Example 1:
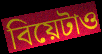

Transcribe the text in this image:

বিয়েটাও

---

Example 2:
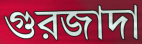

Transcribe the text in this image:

গুরজাদা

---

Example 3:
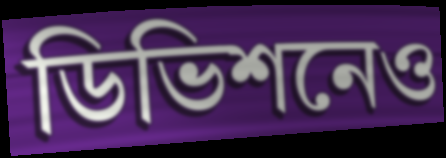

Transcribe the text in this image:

ডিভিশনেও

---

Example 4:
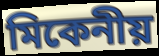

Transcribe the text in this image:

মিকেনীয়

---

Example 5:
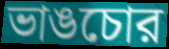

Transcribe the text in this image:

ভাঙচোর